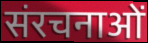
संरचनाओं